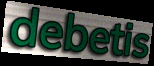
debetis